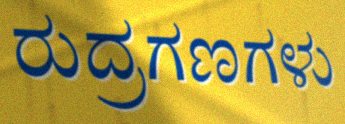
ರುದ್ರಗಣಗಳು